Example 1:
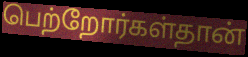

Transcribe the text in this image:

பெற்றோர்கள்தான்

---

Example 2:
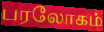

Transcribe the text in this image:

பரலோகம்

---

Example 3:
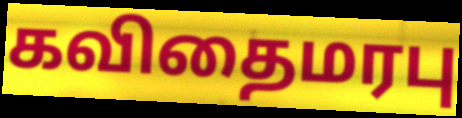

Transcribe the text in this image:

கவிதைமரபு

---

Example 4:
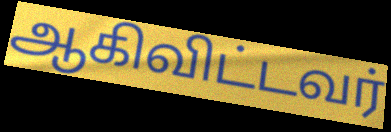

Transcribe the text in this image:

ஆகிவிட்டவர்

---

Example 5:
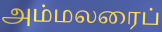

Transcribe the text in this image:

அம்மலரைப்